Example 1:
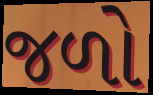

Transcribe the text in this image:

જળો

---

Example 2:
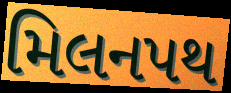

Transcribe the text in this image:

મિલનપથ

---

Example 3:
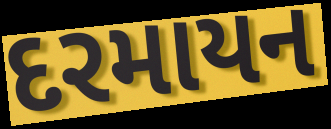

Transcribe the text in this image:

દરમાયન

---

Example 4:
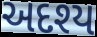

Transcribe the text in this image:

અદશ્ય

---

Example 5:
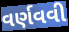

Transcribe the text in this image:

વર્ણવવી